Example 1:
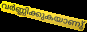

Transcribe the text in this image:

വർണ്ണിക്കുകയാണു്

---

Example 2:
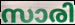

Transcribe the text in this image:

സാരി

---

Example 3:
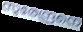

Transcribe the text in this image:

സുരേന്ദ്രനെ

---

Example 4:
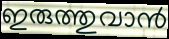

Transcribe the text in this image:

ഇരുത്തുവാൻ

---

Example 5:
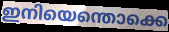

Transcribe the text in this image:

ഇനിയെന്തൊക്കെ